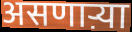
असणाऱ्‍या